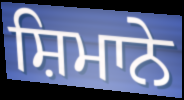
ਸ਼ਿਮਾਨੇ